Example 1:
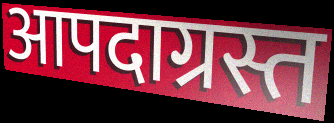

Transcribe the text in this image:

आपदाग्रस्त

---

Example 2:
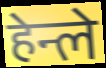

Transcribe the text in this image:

हेन्ले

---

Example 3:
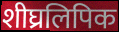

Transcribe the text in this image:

शीघ्रलिपिक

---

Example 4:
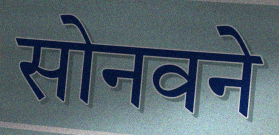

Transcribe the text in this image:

सोनवने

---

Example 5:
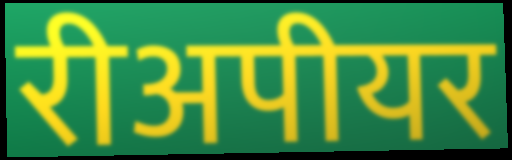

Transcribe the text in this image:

रीअपीयर